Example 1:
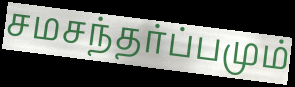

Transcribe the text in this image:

சமசந்தர்ப்பமும்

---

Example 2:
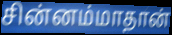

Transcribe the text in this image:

சின்னம்மாதான்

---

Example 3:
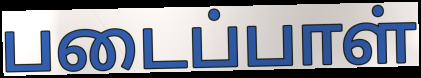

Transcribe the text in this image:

படைப்பாள்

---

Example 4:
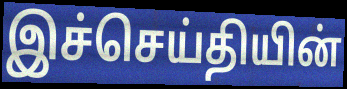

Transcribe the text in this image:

இச்செய்தியின்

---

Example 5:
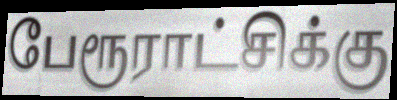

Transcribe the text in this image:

பேரூராட்சிக்கு